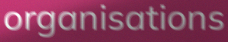
organisations